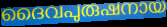
ദൈവപുരുഷനായ